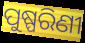
ପୁଷ୍ପରିଣୀ